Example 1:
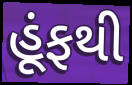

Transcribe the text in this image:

હૂંફથી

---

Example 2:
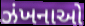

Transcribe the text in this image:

ઝંખનાઓ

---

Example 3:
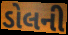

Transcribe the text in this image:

ડોલની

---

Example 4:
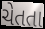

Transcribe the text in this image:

ચેતતા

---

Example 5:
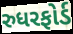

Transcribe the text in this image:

રુધરફોર્ડ